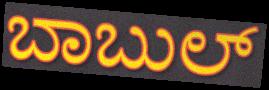
ಬಾಬುಲ್